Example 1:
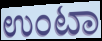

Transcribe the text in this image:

ಉಂಟಾ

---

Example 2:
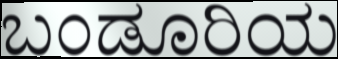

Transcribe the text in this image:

ಬಂಡೂರಿಯ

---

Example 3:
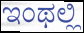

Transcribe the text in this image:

ಇಂಥಲ್ಲಿ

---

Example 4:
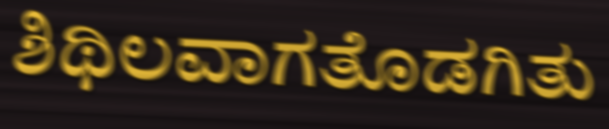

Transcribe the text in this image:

ಶಿಥಿಲವಾಗತೊಡಗಿತು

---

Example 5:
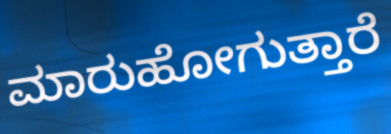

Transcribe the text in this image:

ಮಾರುಹೋಗುತ್ತಾರೆ